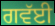
ਗਵੱਈ